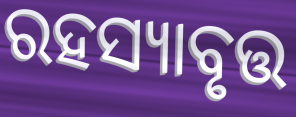
ରହସ୍ୟାବୃତ୍ତ